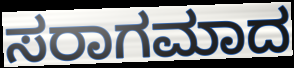
ಸರಾಗಮಾದ